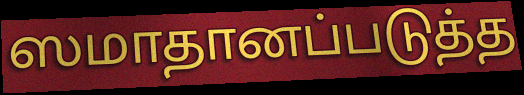
ஸமாதானப்படுத்த